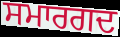
ਸਮਾਰਗਦ